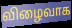
விழைவாக